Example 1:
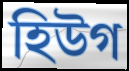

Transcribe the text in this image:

হিউগ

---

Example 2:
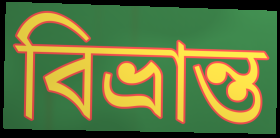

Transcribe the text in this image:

বিভ্ৰান্ত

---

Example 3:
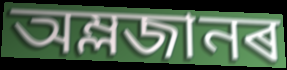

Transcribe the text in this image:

অম্লজানৰ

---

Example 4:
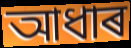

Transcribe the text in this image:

আধাৰ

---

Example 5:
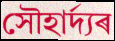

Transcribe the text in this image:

সৌহাৰ্দ্যৰ